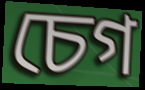
চেগ